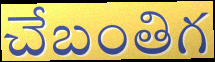
చేబంతిగ